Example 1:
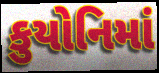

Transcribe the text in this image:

કુયોનિમાં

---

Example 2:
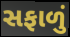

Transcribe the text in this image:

સફાળું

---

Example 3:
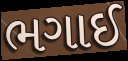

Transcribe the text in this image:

ભગાઈ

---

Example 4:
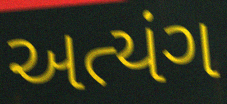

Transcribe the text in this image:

અત્યંગ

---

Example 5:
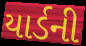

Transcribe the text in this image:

યાર્ડની